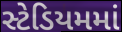
સ્ટેડિયમમાં